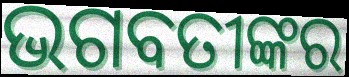
ଭଗବତୀଙ୍କର